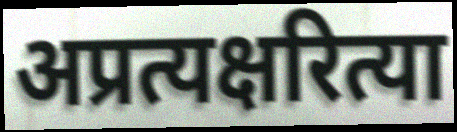
अप्रत्यक्षरित्या